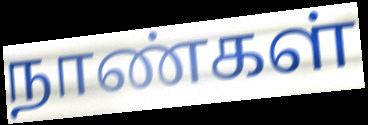
நாண்கள்